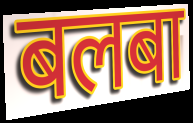
बलबा